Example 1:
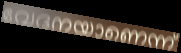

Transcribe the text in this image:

വേദനയാണെന്ന്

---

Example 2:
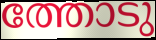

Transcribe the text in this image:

ത്തോടു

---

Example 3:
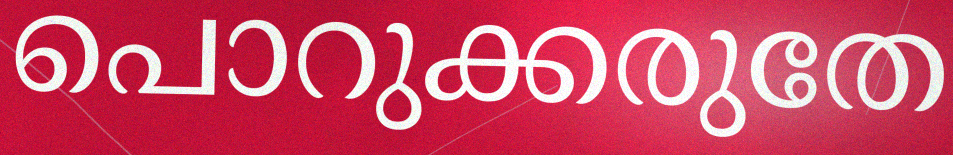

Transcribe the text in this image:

പൊറുക്കരുതേ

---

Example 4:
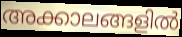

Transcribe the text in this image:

അക്കാലങ്ങളിൽ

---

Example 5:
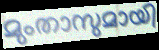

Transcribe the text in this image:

മുംതാസുമായി